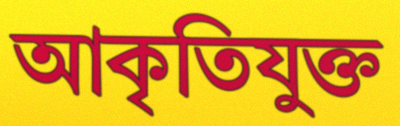
আকৃতিযুক্ত